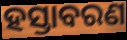
ହସ୍ତାବରଣ